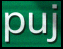
puj